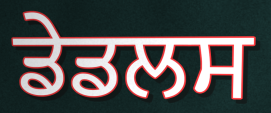
ਡੇਡਲਸ